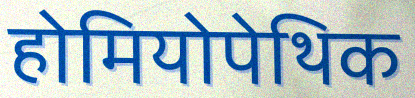
होमियोपेथिक